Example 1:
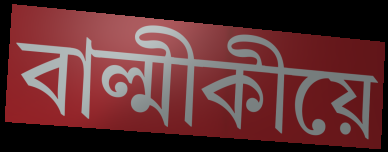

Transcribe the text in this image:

বাল্মীকীয়ে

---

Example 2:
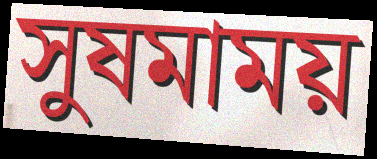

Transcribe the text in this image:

সুষমাময়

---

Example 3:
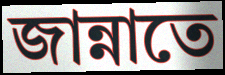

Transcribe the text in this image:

জান্নাতে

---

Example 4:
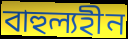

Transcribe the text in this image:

বাহুল্যহীন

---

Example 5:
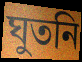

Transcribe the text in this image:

ঘুতনি